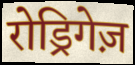
रोड्रिगेज़